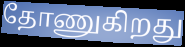
தோணுகிறது